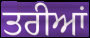
ਤਰੀਆਂ